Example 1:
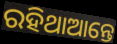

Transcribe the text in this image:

ରହିଥାଆନ୍ତେ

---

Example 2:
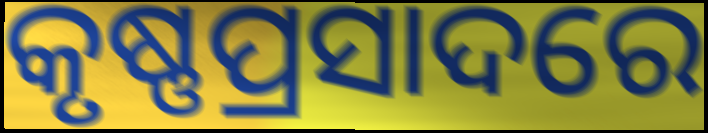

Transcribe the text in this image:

କୃଷ୍ଣପ୍ରସାଦରେ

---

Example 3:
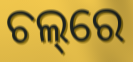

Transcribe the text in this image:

ଚଲ୍‌ରେ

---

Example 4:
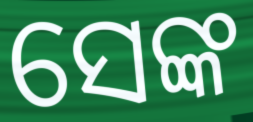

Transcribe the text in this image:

ସେଙ୍କ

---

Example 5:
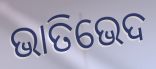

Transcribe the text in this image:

ଭାତିଭେଦ